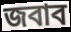
জবাব